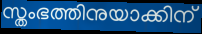
സ്തംഭത്തിനുയാക്കിന്